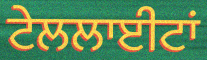
ਟੇਲਲਾਈਟਾਂ